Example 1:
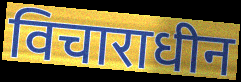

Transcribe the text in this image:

विचाराधीन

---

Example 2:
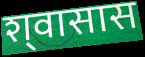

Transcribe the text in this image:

श्वासास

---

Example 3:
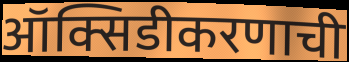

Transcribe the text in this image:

ऑक्सिडीकरणाची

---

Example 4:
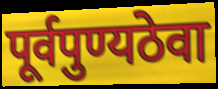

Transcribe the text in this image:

पूर्वपुण्यठेवा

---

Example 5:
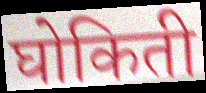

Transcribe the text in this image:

घोकिती